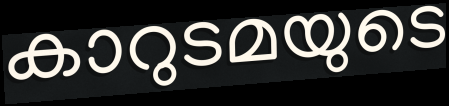
കാറുടമയുടെ